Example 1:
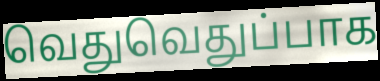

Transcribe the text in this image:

வெதுவெதுப்பாக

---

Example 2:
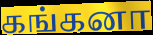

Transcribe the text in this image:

கங்கனா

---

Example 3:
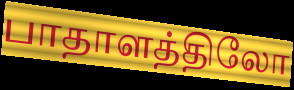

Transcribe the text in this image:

பாதாளத்திலோ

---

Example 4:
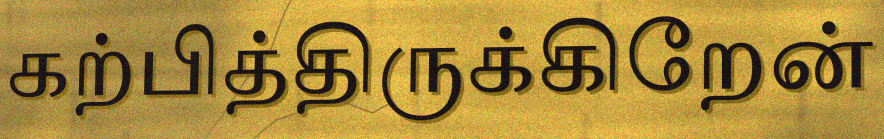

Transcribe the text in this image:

கற்பித்திருக்கிறேன்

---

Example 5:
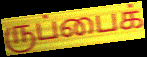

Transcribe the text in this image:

ருப்பைக்